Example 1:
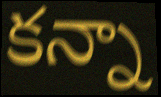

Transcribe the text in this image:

కన్నా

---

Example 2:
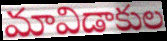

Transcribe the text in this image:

మావిడాకుల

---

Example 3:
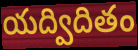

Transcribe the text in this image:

యద్విదితం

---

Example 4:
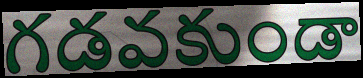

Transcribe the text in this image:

గడవకుండా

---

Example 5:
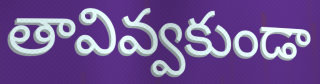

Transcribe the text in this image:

తావివ్వకుండా